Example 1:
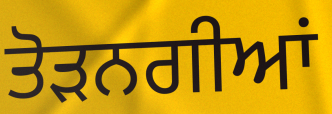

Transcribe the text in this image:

ਤੋੜਨਗੀਆਂ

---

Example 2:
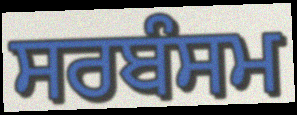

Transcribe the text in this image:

ਸਰਬੰਸਮ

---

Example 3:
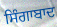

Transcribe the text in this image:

ਸਿੰਗਾਬਾਦ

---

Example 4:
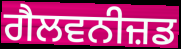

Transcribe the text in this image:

ਗੈਲਵਨੀਜ਼ਡ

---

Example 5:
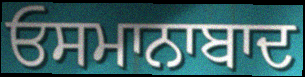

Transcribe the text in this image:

ਓਸਮਾਨਾਬਾਦ